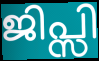
ജിപ്സി